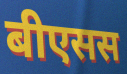
बीएसस